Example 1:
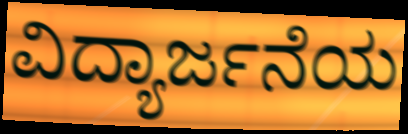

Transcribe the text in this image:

ವಿದ್ಯಾರ್ಜನೆಯ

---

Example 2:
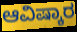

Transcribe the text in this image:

ಆವಿಷ್ಕಾರ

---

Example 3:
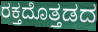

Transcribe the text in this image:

ರಕ್ತದೊತ್ತಡದ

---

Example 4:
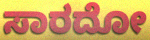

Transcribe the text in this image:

ಸಾರದೋ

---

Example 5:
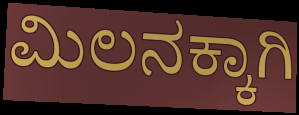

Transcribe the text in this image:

ಮಿಲನಕ್ಕಾಗಿ